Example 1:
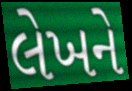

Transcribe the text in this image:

લેખને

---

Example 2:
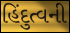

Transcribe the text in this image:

હિંદુત્વની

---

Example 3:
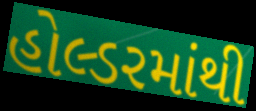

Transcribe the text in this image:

હોલ્ડરમાંથી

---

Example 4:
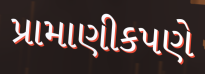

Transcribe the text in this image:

પ્રામાણીકપણે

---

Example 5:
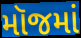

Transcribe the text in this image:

મૉજમાં